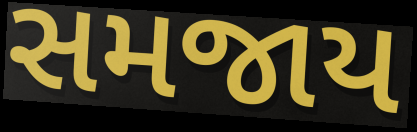
સમજાય